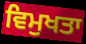
ਵਿਮੁਖਤਾ